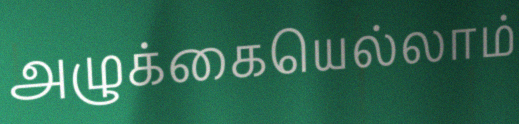
அழுக்கையெல்லாம்